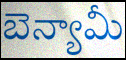
బెన్యామీ